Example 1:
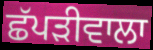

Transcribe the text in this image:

ਛੱਪੜੀਵਾਲਾ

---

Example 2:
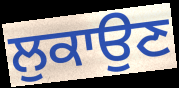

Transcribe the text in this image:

ਲੁਕਾਉਣ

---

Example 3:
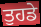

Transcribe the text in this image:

ਤੁਹਡੇ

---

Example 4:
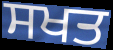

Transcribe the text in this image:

ਸਖਤ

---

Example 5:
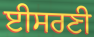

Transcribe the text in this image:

ਈਸਰਣੀ